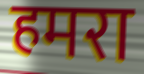
हमरा